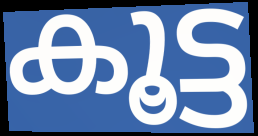
കൂട്ട